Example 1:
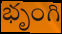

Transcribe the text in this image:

భృంగి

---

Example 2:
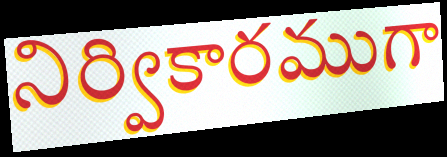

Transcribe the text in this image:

నిర్వికారముగా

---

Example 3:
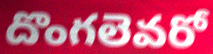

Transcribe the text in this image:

దొంగలెవరో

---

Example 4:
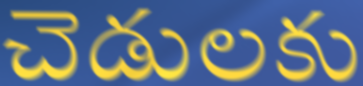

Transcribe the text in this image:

చెడులకు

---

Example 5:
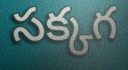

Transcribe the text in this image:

సక్కగ